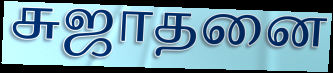
சுஜாதனை